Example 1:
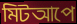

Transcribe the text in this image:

মিটআপে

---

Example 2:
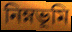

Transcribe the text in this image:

নিম্নভূমি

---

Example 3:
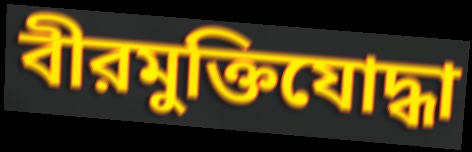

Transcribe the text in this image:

বীরমুক্তিযোদ্ধা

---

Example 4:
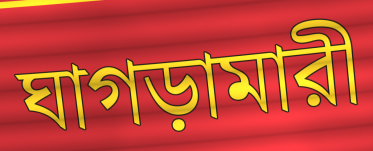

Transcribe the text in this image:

ঘাগড়ামারী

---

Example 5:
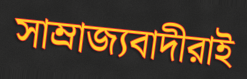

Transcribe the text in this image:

সাম্রাজ্যবাদীরাই